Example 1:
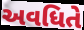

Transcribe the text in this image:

અવધિતે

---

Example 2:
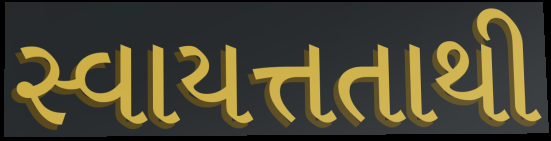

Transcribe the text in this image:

સ્વાયત્તતાથી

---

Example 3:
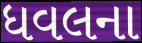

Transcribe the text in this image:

ધવલના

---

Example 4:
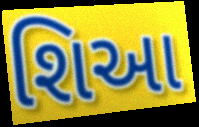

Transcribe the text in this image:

શિઆ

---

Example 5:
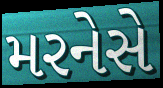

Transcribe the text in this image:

મરનેસે